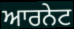
ਆਰਨੇਟ